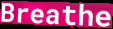
Breathe